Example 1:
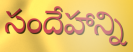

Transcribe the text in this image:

సందేహాన్ని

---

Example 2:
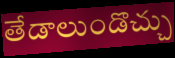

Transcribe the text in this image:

తేడాలుండొచ్చు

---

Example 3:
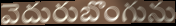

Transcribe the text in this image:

వెదురుబొంగును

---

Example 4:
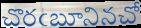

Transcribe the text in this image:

చొరఁబూనినచో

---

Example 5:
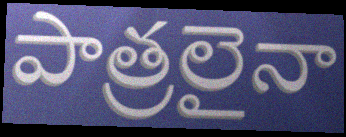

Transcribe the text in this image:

పాత్రలైనా